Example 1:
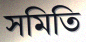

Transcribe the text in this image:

সমিতি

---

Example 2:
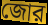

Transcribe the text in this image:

জোর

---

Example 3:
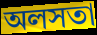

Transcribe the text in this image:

অলসতা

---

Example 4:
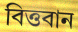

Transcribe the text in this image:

বিত্তবান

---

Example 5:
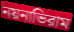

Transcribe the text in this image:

নয়নাভিরাম